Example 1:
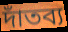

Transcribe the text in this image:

দাঁতব্য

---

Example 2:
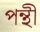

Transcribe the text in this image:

পন্থী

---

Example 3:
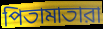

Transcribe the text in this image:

পিতামাতারা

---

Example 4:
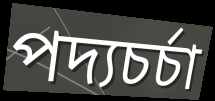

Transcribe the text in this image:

পদ্যচর্চা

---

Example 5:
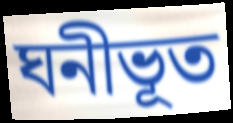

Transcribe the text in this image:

ঘনীভূত